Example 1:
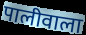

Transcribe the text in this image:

पालीवाला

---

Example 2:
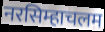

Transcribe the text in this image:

नरसिम्हाचलम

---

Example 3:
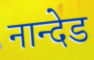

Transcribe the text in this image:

नान्देड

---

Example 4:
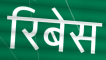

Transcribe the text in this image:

रिबेस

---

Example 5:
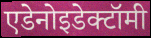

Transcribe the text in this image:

एडेनोइडेक्टॉमी